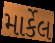
માર્કેલ